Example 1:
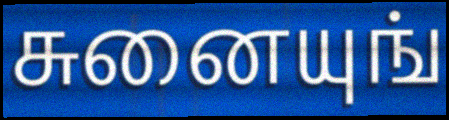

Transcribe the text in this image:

சுனையுங்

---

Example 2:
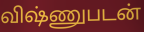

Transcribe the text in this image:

விஷ்ணுபடன்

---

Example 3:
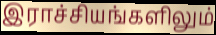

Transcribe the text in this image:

இராச்சியங்களிலும்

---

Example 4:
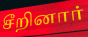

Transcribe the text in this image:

சீறினார்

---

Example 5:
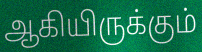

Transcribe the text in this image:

ஆகியிருக்கும்